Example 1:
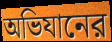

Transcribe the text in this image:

অভিযানের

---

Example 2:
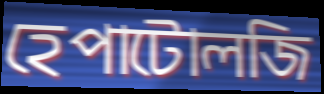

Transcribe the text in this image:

হেপাটোলজি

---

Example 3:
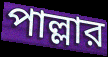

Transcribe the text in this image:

পাল্লার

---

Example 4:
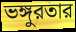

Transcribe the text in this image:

ভঙ্গুরতার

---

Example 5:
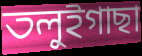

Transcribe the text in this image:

তলুইগাছা